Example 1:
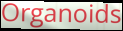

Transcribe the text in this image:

Organoids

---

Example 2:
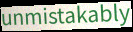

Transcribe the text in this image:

unmistakably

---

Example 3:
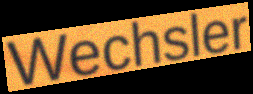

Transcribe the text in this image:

Wechsler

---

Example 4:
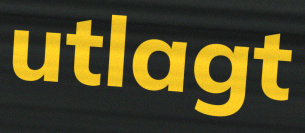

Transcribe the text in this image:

utlagt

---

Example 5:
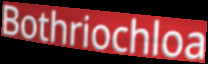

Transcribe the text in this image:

Bothriochloa